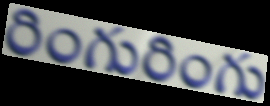
రింగురింగు